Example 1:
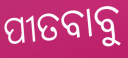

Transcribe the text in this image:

ପୀତବାବୁ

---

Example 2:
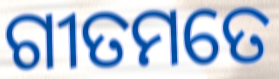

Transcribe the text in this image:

ଗୀତମତେ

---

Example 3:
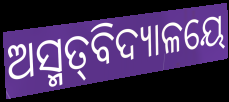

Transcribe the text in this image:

ଅସ୍ମତ୍‌ବିଦ୍ୟାଳୟେ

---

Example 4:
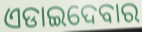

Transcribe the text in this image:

ଏଡାଇଦେବାର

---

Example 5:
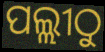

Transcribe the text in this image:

ପଲ୍ଲୀଠୁ